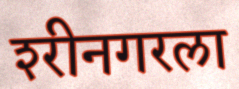
श्रीनगरला